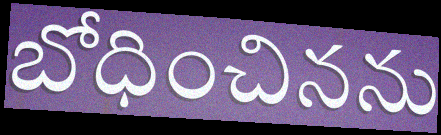
బోధించినను